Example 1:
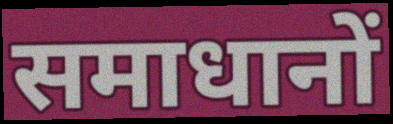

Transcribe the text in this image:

समाधानों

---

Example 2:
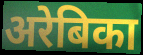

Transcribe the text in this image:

अरेबिका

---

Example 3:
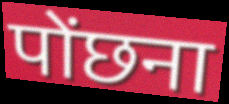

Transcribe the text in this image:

पोंछना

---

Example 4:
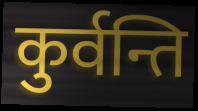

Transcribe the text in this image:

कुर्वन्ति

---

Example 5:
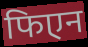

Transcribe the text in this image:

फिएन